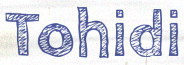
Tohidi